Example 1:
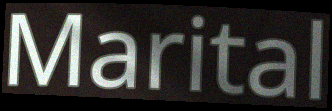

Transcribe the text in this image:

Marital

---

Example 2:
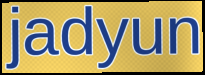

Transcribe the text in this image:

jadyun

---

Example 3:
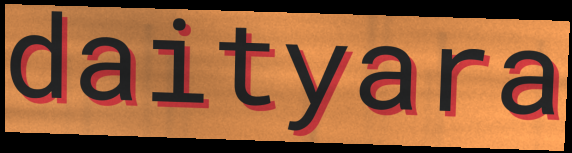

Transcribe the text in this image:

daityara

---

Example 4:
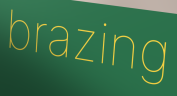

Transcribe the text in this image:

brazing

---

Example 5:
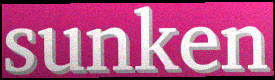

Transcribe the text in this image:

sunken